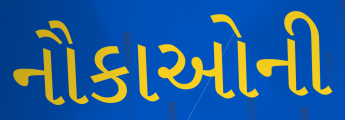
નૌકાઓની